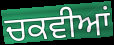
ਚਕਵੀਆਂ